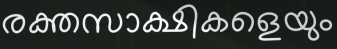
രക്തസാക്ഷികളെയും